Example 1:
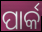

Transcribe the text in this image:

ପାର୍କ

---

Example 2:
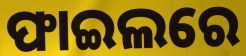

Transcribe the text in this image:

ଫାଇଲରେ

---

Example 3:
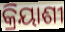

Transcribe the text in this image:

କ୍ରିୟାଶୀ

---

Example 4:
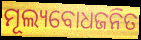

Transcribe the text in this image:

ମୂଲ୍ୟବୋଧଜନିତ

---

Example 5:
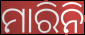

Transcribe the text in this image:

ମାରିନି